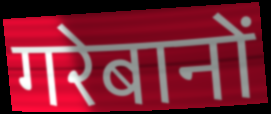
गरेबानों